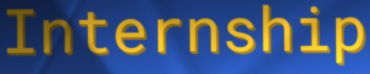
Internship